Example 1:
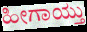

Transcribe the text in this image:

ಹೀಗಾಯ್ತು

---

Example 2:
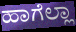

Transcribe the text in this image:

ಹಾಗೆಲ್ಲಾ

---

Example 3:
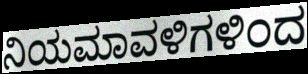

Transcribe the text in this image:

ನಿಯಮಾವಳಿಗಳಿಂದ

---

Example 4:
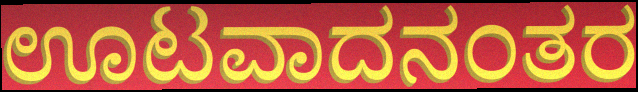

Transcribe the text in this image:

ಊಟವಾದನಂತರ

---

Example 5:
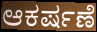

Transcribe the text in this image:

ಆಕರ್ಷಣೆ